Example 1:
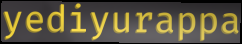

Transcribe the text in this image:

yediyurappa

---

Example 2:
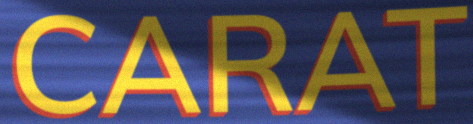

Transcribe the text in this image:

CARAT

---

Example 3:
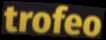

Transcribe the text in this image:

trofeo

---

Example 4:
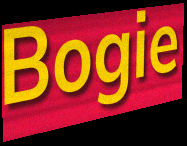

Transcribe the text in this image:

Bogie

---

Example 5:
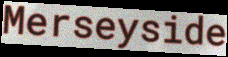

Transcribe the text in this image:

Merseyside